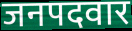
जनपदवार